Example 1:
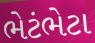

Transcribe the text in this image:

ભેટંભેટા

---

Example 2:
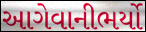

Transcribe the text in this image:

આગેવાનીભર્યો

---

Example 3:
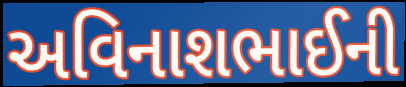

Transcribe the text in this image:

અવિનાશભાઈની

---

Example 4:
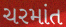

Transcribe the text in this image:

ચરમાંત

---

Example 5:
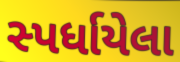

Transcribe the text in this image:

સ્પર્ધાયેલા